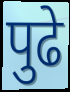
पुढे